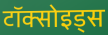
टॉक्सोइड्स